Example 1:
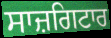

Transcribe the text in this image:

ਸਾਜ਼ਗਿਟਾਰ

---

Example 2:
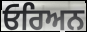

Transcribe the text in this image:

ਓਰਿਅਨ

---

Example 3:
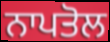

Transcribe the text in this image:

ਨਾਪਤੋਲ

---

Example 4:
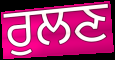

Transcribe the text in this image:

ਰੁਲਣ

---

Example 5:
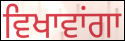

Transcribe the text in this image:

ਵਿਖਾਵਾਂਗਾ